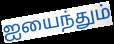
ஐயைந்தும்